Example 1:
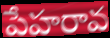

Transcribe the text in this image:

పేహరావ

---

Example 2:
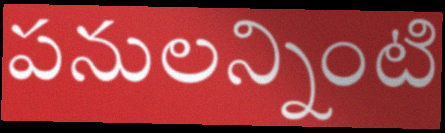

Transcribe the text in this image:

పనులన్నింటి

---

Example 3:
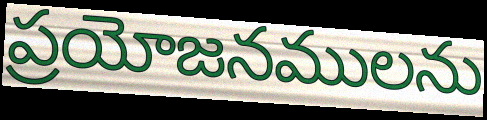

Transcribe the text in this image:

ప్రయోజనములను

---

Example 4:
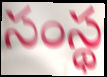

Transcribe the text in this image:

సంస్థ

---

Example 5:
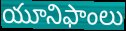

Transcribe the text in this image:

యూనిఫాంలు